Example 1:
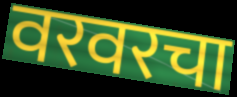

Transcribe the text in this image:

वरवरचा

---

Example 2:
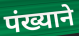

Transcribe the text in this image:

पंख्याने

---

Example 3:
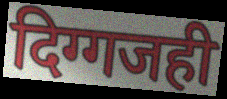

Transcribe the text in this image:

दिग्गजही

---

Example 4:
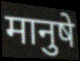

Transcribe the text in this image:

मानुषे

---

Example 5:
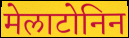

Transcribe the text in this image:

मेलाटोनिन